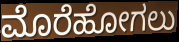
ಮೊರೆಹೋಗಲು